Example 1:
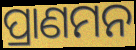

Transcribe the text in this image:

ପ୍ରାଣମନ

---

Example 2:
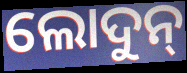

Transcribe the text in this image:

ଲୋଦୁନ୍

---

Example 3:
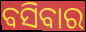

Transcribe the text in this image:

ବସିବାର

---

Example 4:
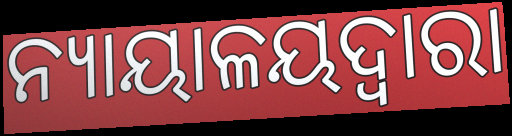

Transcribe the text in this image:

ନ୍ୟାୟାଳୟଦ୍ୱାରା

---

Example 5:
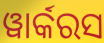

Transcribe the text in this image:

ୱାର୍କରସ